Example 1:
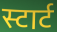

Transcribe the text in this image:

स्टार्ट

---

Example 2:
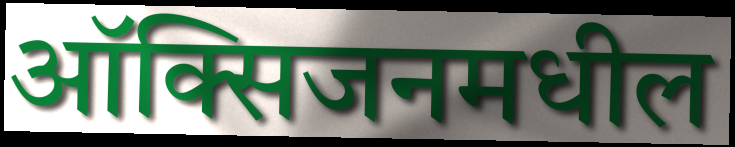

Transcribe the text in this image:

ऑक्सिजनमधील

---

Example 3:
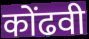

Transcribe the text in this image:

कोंढवी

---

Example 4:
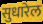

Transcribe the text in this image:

सुधारेल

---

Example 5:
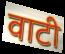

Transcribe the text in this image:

वाटी